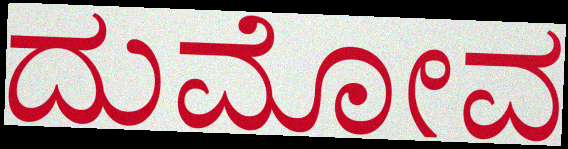
ದುಮೋವ